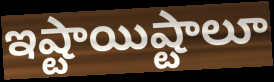
ఇష్టాయిష్టాలూ